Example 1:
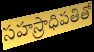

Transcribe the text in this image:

సహస్రాధిపతితో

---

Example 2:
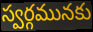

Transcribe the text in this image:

స్వర్గమునకు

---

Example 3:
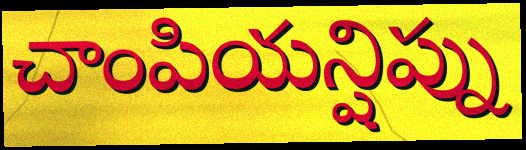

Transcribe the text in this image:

చాంపియన్షిప్ను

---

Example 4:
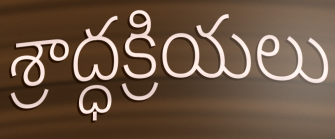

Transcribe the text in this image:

శ్రాద్ధక్రియలు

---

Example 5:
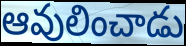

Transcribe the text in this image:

ఆవులించాడు